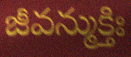
జీవన్ముక్తిః